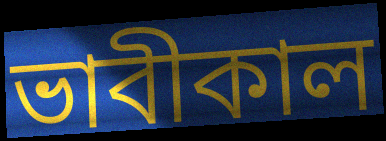
ভাবীকাল